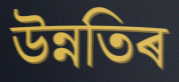
উন্নতিৰ